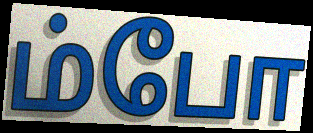
ம்போ